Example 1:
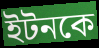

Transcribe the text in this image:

ইটনকে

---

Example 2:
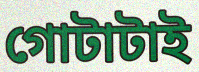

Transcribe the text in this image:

গোটাটাই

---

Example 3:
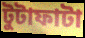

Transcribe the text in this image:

টুটাফাটা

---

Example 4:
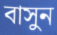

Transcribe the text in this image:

বাসুন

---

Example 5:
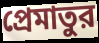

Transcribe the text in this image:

প্রেমাতুর